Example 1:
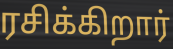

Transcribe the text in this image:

ரசிக்கிறார்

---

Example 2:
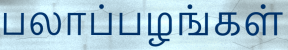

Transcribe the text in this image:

பலாப்பழங்கள்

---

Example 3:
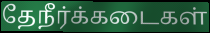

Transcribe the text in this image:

தேநீர்க்கடைகள்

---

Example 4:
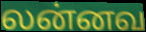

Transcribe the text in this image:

லன்னவ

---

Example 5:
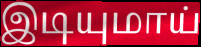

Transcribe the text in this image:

இடியுமாய்